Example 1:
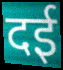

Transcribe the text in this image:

दई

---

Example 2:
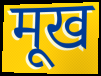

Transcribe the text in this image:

मूख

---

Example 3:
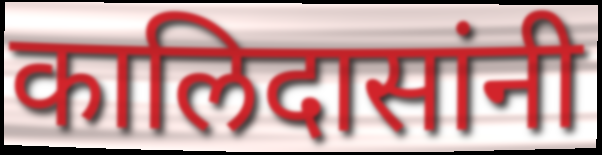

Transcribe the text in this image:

कालिदासांनी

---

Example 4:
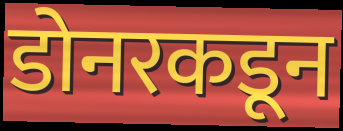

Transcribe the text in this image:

डोनरकडून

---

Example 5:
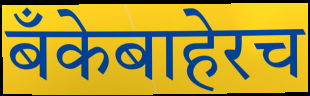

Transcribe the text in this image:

बँकेबाहेरच